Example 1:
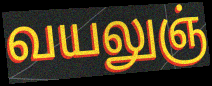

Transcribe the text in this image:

வயலுஞ்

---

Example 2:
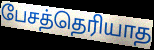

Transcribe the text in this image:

பேசத்தெரியாத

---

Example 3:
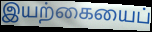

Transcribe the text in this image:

இயற்கையைப்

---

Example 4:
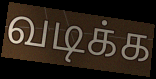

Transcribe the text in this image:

வடிக்க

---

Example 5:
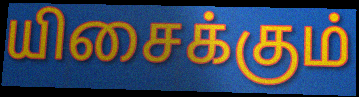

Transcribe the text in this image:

யிசைக்கும்